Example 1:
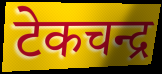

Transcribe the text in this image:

टेकचन्द्र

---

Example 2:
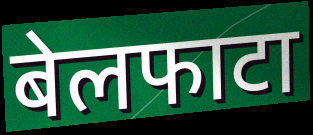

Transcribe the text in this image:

बेलफाटा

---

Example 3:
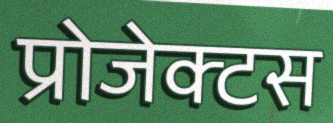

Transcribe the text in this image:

प्रोजेक्‍टस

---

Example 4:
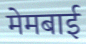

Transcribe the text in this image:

मेमबाई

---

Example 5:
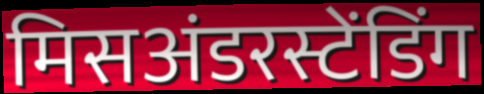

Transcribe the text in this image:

मिसअंडरस्टेंडिंग